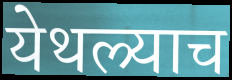
येथल्याच